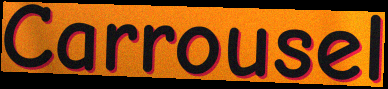
Carrousel